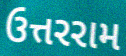
ઉત્તરરામ